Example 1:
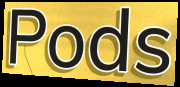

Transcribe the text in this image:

Pods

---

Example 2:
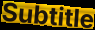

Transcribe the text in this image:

Subtitle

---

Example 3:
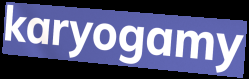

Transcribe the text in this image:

karyogamy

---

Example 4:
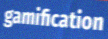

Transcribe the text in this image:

gamification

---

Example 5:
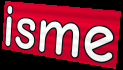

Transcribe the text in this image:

isme